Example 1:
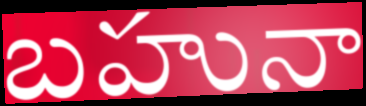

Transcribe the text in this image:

బహునా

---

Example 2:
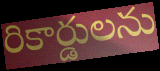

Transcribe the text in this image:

రికార్డులను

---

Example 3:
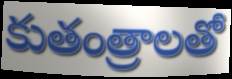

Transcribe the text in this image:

కుతంత్రాలతో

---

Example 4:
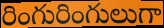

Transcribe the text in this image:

రింగురింగులుగా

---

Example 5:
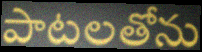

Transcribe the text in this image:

పాటలతోను